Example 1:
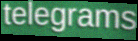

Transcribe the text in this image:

telegrams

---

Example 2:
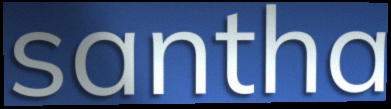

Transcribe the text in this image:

santha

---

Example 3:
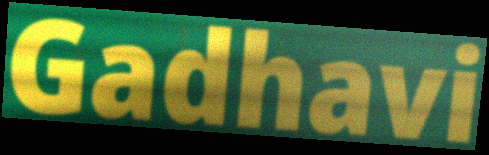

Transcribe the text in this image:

Gadhavi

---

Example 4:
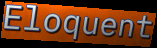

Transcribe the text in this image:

Eloquent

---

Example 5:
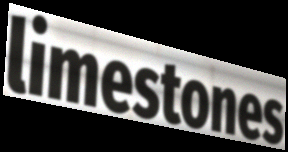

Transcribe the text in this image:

limestones